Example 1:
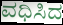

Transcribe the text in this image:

ವಧಿಸಿದ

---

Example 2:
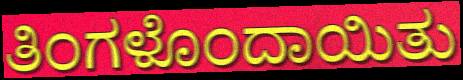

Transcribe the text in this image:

ತಿಂಗಳೊಂದಾಯಿತು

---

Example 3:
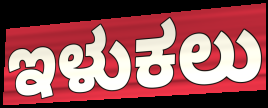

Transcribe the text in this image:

ಇಳುಕಲು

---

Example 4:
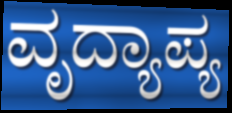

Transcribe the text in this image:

ವೃದ್ಯಾಪ್ಯ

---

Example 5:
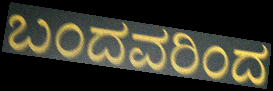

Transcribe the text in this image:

ಬಂದವರಿಂದ